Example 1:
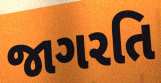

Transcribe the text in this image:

જાગરતિ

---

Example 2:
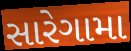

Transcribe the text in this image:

સારેગામા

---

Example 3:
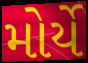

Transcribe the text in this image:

મોર્યે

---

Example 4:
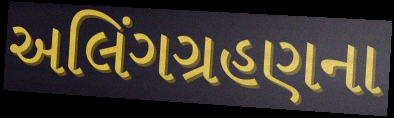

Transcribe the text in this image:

અલિંગગ્રહણના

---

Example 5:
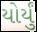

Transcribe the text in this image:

યોર્યું